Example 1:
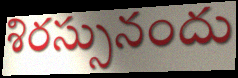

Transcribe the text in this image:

శిరస్సునందు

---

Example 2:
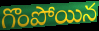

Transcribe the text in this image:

గొంపోయిన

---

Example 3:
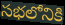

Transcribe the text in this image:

సభలోనికి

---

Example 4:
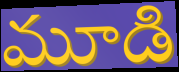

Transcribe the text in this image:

మూడి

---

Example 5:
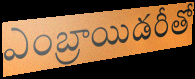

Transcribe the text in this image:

ఎంబ్రాయిడరీతో